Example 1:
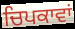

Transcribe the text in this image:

ਚਿਪਕਾਵਾਂ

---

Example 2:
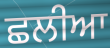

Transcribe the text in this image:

ਛਲੀਆ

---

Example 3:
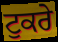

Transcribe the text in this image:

ਟੁਕਰੇ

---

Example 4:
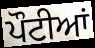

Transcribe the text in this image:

ਪੌਟੀਆਂ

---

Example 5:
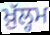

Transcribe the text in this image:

ਖ਼ੁੱਲ੍ਹਮ